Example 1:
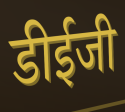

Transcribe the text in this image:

डीईजी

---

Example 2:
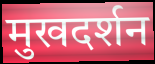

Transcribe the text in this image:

मुखदर्शन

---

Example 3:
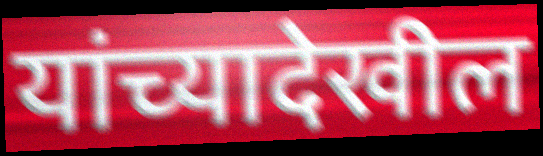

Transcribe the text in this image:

यांच्यादेखील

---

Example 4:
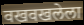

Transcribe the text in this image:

वखवखलेला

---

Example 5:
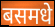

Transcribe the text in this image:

बसमधे